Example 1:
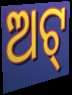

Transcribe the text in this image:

ଅଟ୍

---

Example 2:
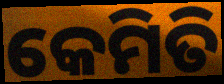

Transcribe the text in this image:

କେମିତି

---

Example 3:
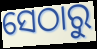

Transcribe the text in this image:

ସେଠାରୁ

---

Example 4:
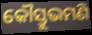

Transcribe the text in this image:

କୌସ୍ତୁଭମଣି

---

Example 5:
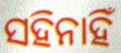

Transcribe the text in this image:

ସହିନାହିଁ